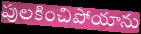
పులకించిపోయాను